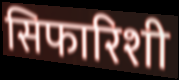
सिफारिशी